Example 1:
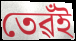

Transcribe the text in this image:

তেৱঁই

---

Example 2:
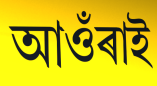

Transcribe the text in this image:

আওঁৰাই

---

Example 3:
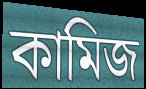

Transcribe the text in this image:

কামিজ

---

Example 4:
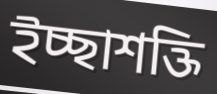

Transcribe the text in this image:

ইচ্ছাশক্তি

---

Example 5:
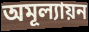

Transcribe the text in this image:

অমূল্যায়ন